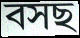
বসছ